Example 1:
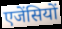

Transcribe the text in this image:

एजेंसियों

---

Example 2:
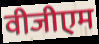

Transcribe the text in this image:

वीजीएम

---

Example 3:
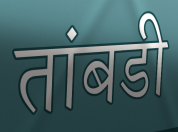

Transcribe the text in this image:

तांबडी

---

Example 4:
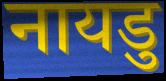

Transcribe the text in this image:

नायडु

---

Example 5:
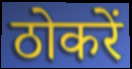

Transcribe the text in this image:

ठोकरें